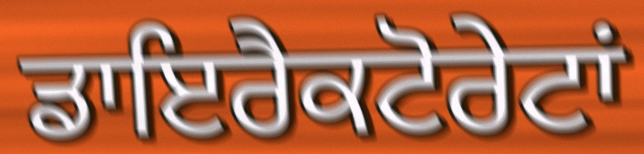
ਡਾਇਰੈਕਟੋਰੇਟਾਂ